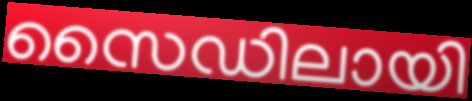
സൈഡിലായി